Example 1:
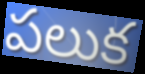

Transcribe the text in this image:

పలుక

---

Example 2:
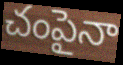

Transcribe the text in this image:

చంపైనా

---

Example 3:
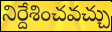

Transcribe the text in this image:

నిర్దేశించవచ్చు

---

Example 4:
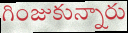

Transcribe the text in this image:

గింజుకున్నారు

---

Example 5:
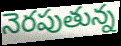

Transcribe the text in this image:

నెరపుతున్న